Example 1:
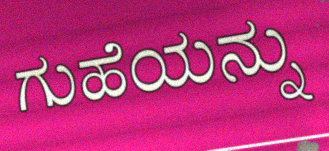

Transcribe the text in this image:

ಗುಹೆಯನ್ನು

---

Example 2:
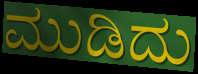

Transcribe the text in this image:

ಮುಡಿದು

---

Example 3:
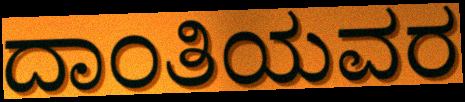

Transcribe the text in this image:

ದಾಂತಿಯವರ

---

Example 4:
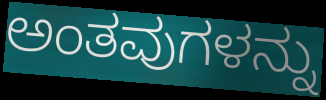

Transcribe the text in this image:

ಅಂತವುಗಳನ್ನು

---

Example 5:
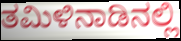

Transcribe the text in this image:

ತಮಿಳಿನಾಡಿನಲ್ಲಿ